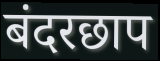
बंदरछाप